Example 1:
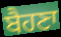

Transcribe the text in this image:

ਬੈਹਣਾ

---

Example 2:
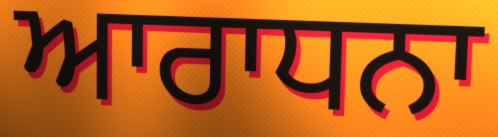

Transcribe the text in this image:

ਆਰਾਧਨਾ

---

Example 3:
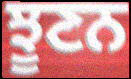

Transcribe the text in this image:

ਝੂਣਨ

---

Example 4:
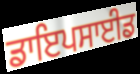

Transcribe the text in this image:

ਡਾਇਪਸਾਈਡ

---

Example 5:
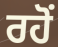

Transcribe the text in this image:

ਰਹੋਂ